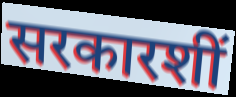
सरकारशीं